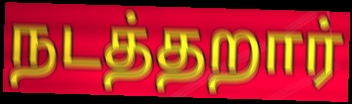
நடத்தறார்